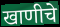
खाणीचे